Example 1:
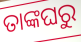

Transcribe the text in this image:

ତାଙ୍କଘରୁ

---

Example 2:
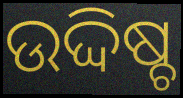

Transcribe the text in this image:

ଉଦ୍ଦିଷ୍ଚ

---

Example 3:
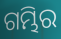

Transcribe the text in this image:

ଗମ୍ଭିର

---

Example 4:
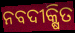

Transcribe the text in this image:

ନବଦୀକ୍ଷିତ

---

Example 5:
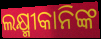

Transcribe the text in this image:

ଲକ୍ଷ୍ମୀକାନିଙ୍କ